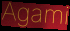
Agami